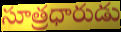
సూత్రధారుడు